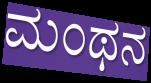
ಮಂಥನ